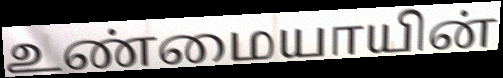
உண்மையாயின்